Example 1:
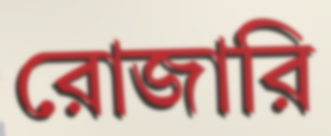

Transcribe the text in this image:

রোজারি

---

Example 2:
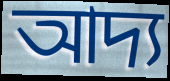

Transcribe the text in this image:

আদ্য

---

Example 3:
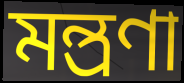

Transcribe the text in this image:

মন্ত্রণা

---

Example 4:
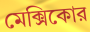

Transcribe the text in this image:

মেক্সিকোর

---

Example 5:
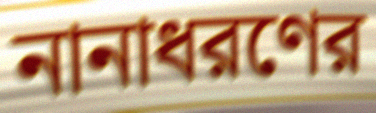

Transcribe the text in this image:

নানাধরণের